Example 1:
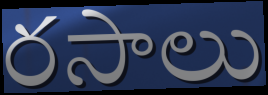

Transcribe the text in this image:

రసాలు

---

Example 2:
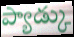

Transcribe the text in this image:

ప్యాడ్కు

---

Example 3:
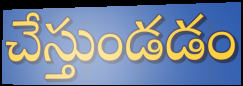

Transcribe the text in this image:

చేస్తుండడం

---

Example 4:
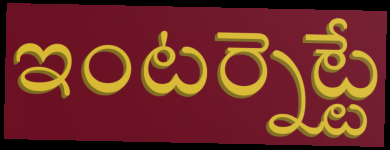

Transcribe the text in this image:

ఇంటర్నెట్టే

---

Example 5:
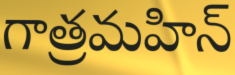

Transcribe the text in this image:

గాత్రమహిన్